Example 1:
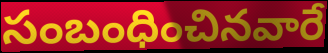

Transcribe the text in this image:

సంబంధించినవారే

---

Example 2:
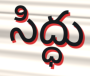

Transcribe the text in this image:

సిద్ధు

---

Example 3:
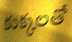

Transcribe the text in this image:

కుక్కలతో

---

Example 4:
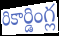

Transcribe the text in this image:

రికార్డింగ్ల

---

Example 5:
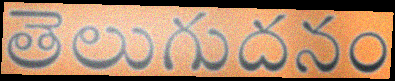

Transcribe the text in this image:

తెలుగుదనం